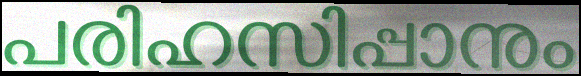
പരിഹസിപ്പാനും